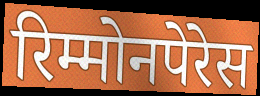
रिम्मोनपेरेस